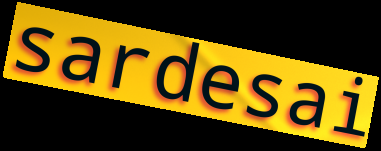
sardesai